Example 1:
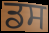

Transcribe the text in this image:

ਡਸ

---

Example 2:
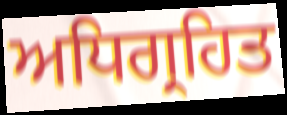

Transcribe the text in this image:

ਅਧਿਗ੍ਰਹਿਤ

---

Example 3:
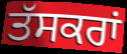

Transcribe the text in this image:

ਤੱਸਕਰਾਂ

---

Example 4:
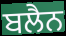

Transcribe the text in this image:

ਬਲੈਨ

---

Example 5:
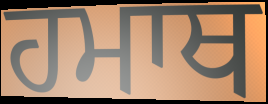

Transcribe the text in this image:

ਹਮਾਥ